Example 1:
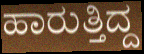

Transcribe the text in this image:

ಹಾರುತ್ತಿದ್ದ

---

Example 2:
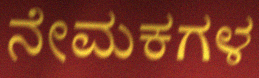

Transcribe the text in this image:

ನೇಮಕಗಳ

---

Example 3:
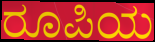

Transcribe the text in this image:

ರೂಪಿಯ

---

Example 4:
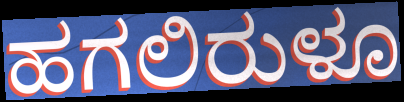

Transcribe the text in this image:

ಹಗಲಿರುಳೂ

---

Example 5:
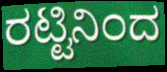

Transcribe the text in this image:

ರಟ್ಟಿನಿಂದ